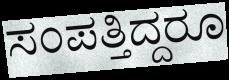
ಸಂಪತ್ತಿದ್ದರೂ